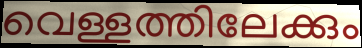
വെള്ളത്തിലേക്കും